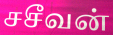
சசீவன்